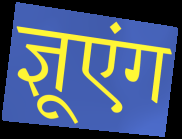
ज्ञूएंग